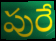
పురే